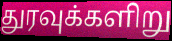
துரவுக்களிறு